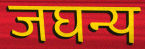
जघन्‍य